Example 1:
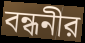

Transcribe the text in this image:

বন্ধনীর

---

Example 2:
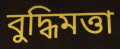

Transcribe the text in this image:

বুদ্ধিমত্তা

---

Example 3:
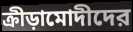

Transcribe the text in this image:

ক্রীড়ামোদীদের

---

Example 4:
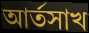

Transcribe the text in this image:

আর্তসাখ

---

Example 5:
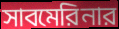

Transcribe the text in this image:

সাবমেরিনার